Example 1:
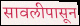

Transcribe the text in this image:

सावलीपासून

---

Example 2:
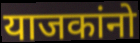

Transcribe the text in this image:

याजकांनो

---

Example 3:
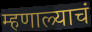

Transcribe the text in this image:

म्हणाल्याचं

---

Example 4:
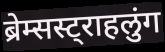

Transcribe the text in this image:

ब्रेम्सस्ट्राहलुंग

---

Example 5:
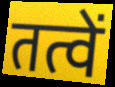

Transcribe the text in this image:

तत्वें